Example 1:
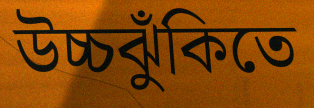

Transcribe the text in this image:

উচ্চঝুঁকিতে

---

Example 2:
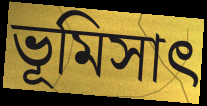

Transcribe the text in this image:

ভূমিসাৎ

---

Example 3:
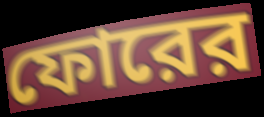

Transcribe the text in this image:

ফোরের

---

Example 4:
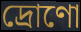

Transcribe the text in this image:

দ্রোণো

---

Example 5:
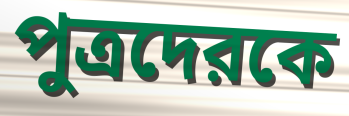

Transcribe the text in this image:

পুত্রদেরকে